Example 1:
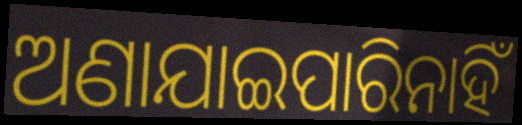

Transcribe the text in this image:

ଅଣାଯାଇପାରିନାହିଁ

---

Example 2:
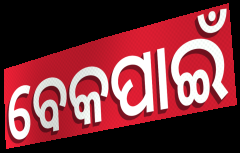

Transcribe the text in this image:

ବେକପାଇଁ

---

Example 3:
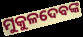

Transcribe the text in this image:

ମୁକୁଳଦେବଙ୍କ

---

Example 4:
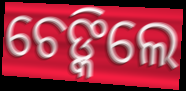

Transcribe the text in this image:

ଚେଙ୍କିଲେ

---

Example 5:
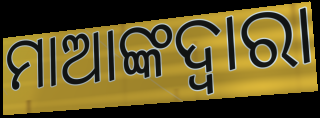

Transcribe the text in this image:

ମାଆଙ୍କଦ୍ଵାରା